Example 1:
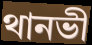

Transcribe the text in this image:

থানভী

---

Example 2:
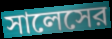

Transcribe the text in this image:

সালেসের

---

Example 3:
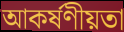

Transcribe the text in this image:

আকর্ষণীয়তা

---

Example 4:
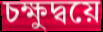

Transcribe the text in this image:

চক্ষুদ্বয়ে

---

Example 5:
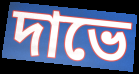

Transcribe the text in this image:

দাভে